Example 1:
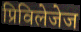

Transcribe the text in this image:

प्रिविलेजेज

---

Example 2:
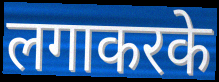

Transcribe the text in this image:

लगाकरके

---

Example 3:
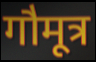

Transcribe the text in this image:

गौमूत्र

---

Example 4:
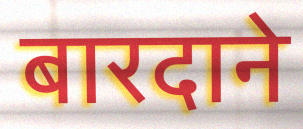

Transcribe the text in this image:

बारदाने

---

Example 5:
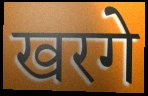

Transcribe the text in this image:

खरगे